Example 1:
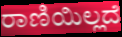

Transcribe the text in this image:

ರಾಣಿಯಿಲ್ಲದೆ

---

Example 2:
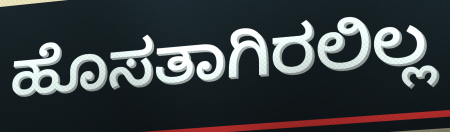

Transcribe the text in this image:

ಹೊಸತಾಗಿರಲಿಲ್ಲ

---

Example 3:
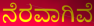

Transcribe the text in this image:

ನೆರವಾಗಿವೆ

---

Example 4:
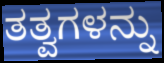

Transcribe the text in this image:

ತತ್ವಗಳನ್ನು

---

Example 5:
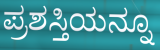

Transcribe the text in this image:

ಪ್ರಶಸ್ತಿಯನ್ನೂ